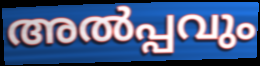
അൽപ്പവും